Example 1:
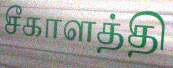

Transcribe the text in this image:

சீகாளத்தி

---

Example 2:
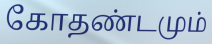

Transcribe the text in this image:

கோதண்டமும்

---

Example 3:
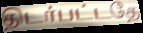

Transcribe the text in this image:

திடர்பட்டதே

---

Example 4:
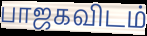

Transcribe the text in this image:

பாஜகவிடம்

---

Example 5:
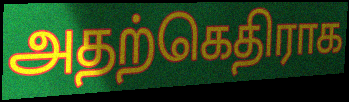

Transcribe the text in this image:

அதற்கெதிராக